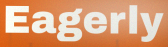
Eagerly